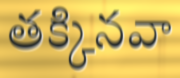
తక్కినవా